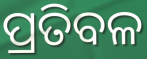
ପ୍ରତିବଳ